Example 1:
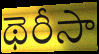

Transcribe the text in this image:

థెరీసా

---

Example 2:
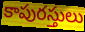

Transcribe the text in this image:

కాపురస్తులు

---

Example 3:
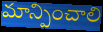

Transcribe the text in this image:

మాన్పించాలి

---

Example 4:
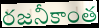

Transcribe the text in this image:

రజనీకాంత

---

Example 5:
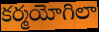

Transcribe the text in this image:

కర్మయోగిలా